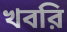
খবরি